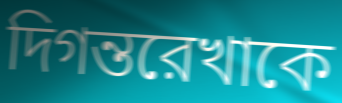
দিগন্তরেখাকে